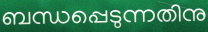
ബന്ധപ്പെടുന്നതിനു